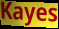
Kayes